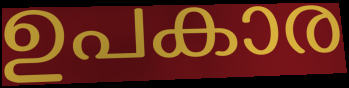
ഉപകാര